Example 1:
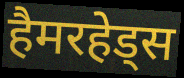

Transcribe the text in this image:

हैमरहेड्स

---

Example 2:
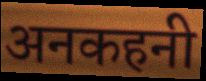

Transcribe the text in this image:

अनकहनी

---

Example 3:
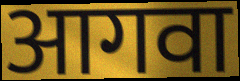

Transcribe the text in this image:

आगवा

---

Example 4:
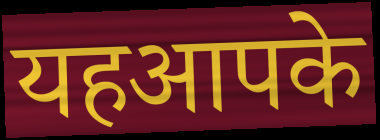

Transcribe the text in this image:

यहआपके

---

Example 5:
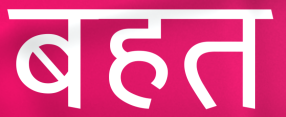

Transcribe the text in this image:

बहत